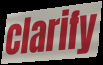
clarify